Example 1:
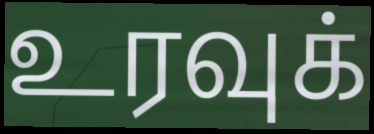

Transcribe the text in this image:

உரவுக்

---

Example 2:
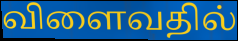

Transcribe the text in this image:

விளைவதில்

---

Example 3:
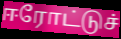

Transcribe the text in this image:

ஈரோட்டுச்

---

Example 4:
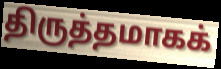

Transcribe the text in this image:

திருத்தமாகக்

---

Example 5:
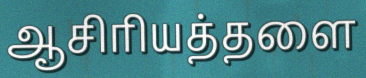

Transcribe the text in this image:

ஆசிரியத்தளை